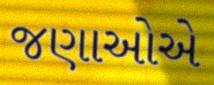
જણાઓએ